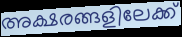
അക്ഷരങ്ങളിലേക്ക്